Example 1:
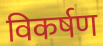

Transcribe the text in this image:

विकर्षण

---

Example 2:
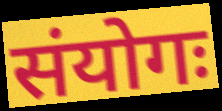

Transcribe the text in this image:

संयोगः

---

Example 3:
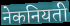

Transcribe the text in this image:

नेकनियती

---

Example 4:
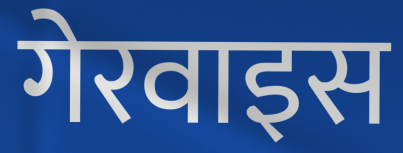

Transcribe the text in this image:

गेरवाइस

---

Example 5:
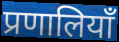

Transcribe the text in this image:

प्रणालियाँ